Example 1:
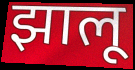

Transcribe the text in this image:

झालू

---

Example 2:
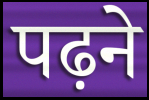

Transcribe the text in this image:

पढ़ने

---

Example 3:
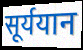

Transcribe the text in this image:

सूर्ययान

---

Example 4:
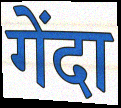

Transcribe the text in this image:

गेंदा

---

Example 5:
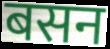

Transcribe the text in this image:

बसन